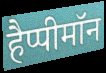
हैप्पीमॉन